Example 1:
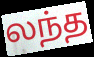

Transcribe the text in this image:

லந்த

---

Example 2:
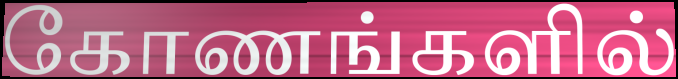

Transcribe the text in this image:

கோணங்களில்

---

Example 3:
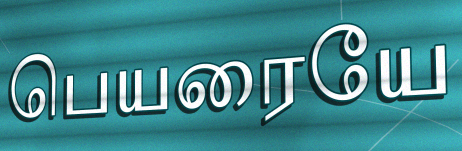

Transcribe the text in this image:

பெயரையே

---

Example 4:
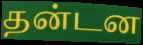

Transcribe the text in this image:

தன்டன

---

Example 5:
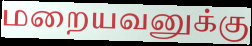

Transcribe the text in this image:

மறையவனுக்கு